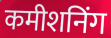
कमीशनिंग